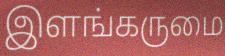
இளங்கருமை